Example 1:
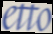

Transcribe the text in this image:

etto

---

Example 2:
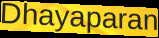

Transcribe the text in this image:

Dhayaparan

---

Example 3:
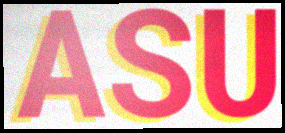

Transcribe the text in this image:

ASU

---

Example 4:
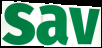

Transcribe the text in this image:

sav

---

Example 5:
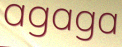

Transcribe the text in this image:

agaga